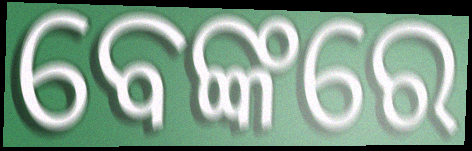
ବେଙ୍କରେ